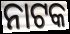
ନାଟକ